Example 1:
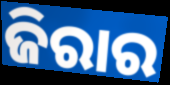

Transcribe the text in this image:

ଜିରାର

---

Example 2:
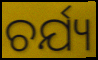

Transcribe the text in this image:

ଚର୍ଯ୍ୟ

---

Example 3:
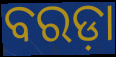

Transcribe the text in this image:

ବରଡ଼ା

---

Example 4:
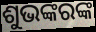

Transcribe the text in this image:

ଶୁଭଙ୍କରଙ୍କ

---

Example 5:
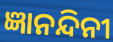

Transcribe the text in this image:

ଜ୍ଞାନନ୍ଦିନୀ